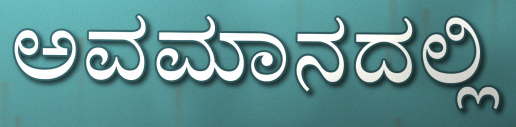
ಅವಮಾನದಲ್ಲಿ